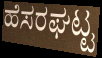
ಹೆಸರಘಟ್ಟ